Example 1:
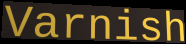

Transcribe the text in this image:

Varnish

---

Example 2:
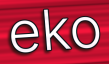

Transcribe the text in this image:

eko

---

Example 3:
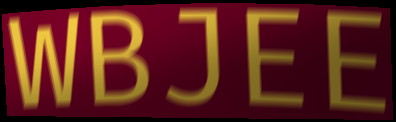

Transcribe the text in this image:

WBJEE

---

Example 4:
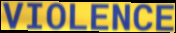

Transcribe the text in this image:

VIOLENCE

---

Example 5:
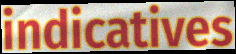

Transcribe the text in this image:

indicatives